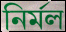
নিৰ্মল